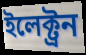
ইলেক্ট্রন